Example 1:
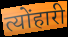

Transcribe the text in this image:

त्योंहारी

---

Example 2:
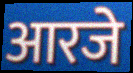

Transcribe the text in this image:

आरजे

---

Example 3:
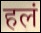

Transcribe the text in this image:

हलं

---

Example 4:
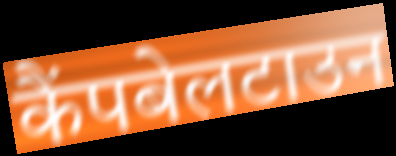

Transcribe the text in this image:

कैंपबेलटाउन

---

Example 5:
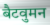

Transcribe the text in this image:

बैटवुमन